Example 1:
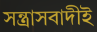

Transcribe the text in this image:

সন্ত্রাসবাদীই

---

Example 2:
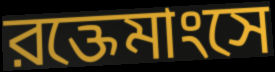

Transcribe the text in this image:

রক্তেমাংসে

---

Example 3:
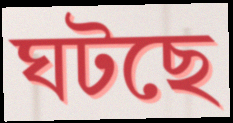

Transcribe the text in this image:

ঘটছে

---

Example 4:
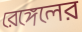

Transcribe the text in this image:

রেঙ্গেলের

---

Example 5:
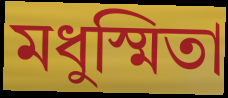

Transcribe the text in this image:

মধুস্মিতা